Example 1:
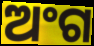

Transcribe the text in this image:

ଅଂଗ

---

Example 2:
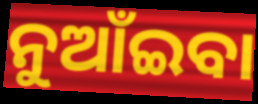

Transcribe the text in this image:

ନୁଆଁଇବା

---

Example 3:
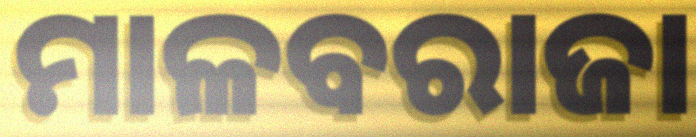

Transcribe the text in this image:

ମାଳବରାଜା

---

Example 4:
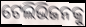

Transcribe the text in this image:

ଟେଲିଭିଜନକୁ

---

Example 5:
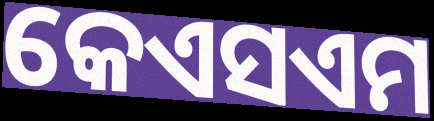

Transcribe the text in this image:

କେଏସଏମ